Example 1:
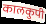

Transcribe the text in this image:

कालकुपी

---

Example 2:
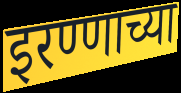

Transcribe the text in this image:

इरण्णाच्या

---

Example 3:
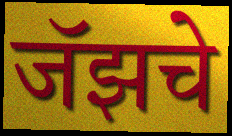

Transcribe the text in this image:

जॅझचे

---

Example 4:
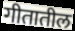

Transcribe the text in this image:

गीतातील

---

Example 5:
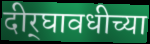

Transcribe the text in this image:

दीर्घावधीच्या